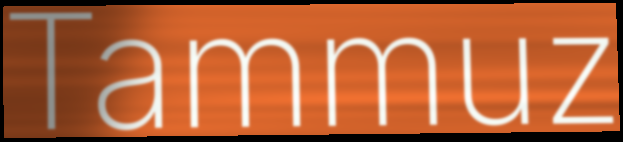
Tammuz